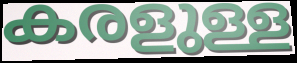
കരളുള്ള